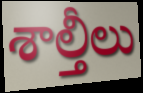
శాల్తీలు